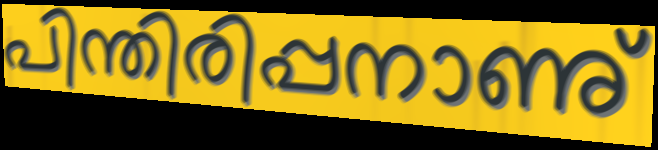
പിന്തിരിപ്പനാണു്